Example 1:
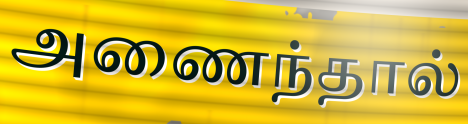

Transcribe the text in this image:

அணைந்தால்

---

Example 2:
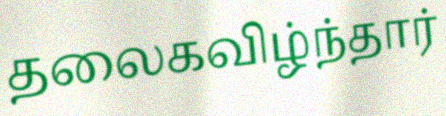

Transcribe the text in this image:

தலைகவிழ்ந்தார்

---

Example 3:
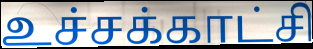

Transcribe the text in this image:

உச்சக்காட்சி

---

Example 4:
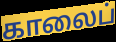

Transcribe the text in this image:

காலைப்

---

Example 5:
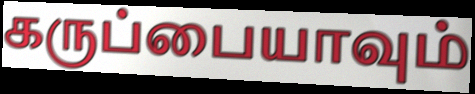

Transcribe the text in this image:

கருப்பையாவும்